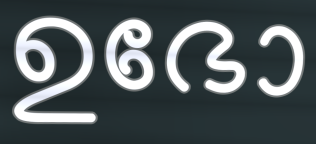
ഉഭോ